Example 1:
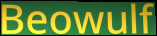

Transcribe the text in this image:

Beowulf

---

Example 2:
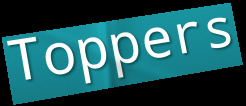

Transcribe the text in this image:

Toppers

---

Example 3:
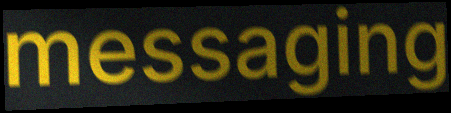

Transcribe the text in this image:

messaging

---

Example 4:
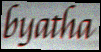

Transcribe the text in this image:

byatha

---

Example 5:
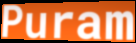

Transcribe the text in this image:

Puram